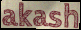
akash